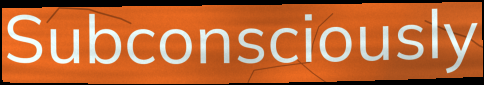
Subconsciously